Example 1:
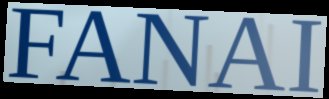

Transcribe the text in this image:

FANAI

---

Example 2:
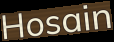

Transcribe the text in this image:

Hosain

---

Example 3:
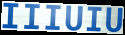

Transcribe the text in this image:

IIIUIU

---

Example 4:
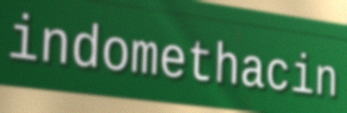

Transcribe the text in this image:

indomethacin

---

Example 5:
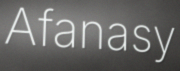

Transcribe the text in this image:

Afanasy